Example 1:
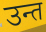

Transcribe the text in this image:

उन्त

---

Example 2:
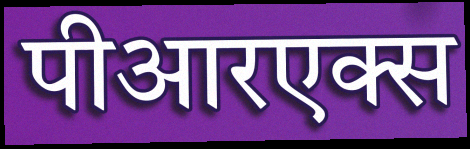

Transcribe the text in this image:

पीआरएक्स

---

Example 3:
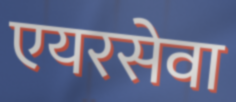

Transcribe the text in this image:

एयरसेवा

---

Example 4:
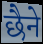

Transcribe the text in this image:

छैने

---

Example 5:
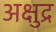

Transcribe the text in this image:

अक्षुद्र